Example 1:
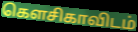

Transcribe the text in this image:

கௌசிகாவிடம்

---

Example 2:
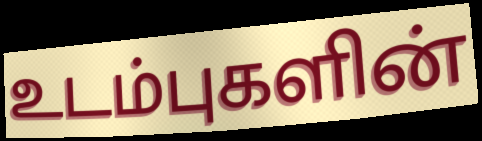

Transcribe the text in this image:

உடம்புகளின்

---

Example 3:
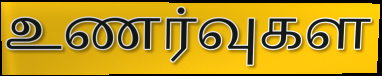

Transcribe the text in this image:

உணர்வுகள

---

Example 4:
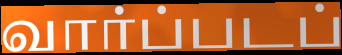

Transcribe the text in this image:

வார்ப்படப்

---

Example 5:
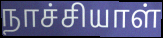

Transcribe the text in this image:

நாச்சியாள்